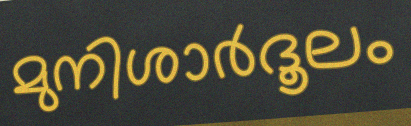
മുനിശാർദൂലം